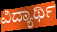
ವಿದ್ಯಾರ್ಥಿ